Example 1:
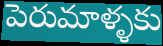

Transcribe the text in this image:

పెరుమాళ్ళకు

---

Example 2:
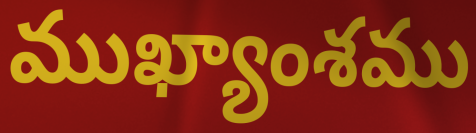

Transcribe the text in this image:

ముఖ్యాంశము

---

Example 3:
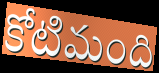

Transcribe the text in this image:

కోటిమంది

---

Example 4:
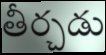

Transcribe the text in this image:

తీర్చడు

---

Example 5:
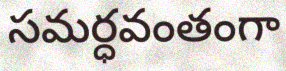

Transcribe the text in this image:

సమర్ధవంతంగా